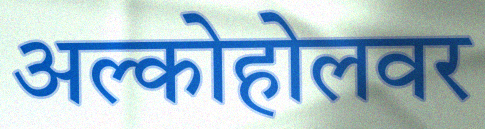
अल्कोहोलवर